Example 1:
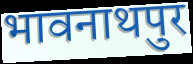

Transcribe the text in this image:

भावनाथपुर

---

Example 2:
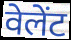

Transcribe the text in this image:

वेलेंट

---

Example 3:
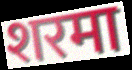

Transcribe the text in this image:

शरमा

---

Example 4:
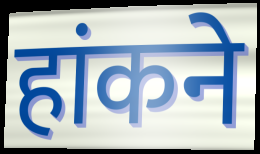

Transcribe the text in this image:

हांकने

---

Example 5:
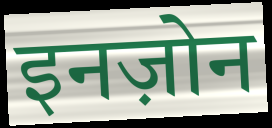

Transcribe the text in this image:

इनज़ोन